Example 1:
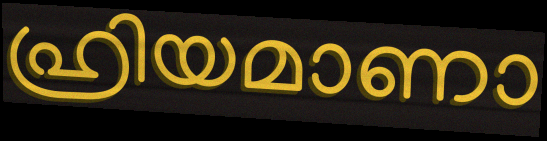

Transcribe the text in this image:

ഹ്രിയമാണാ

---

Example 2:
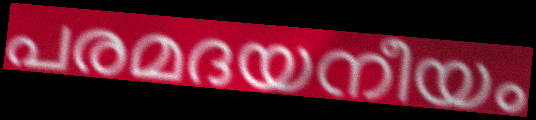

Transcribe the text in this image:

പരമദയനീയം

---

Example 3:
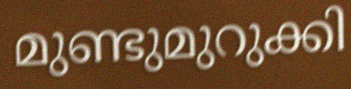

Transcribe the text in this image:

മുണ്ടുമുറുക്കി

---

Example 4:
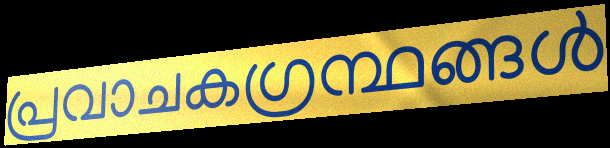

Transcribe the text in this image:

പ്രവാചകഗ്രന്ഥങ്ങൾ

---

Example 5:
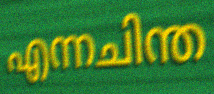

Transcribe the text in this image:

എന്നചിന്ത